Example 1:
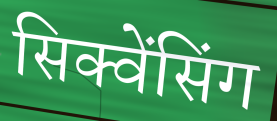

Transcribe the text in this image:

सिक्वेंसिंग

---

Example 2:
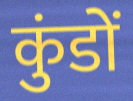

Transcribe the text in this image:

कुंडों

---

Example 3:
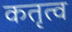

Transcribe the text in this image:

कतृत्व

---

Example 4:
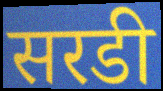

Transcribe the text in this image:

सरडी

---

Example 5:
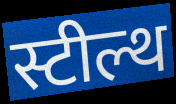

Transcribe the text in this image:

स्टील्थ